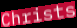
Christs